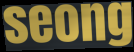
seong